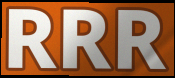
RRR